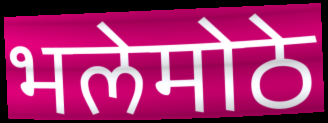
भलेमोठे